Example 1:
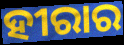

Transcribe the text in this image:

ହୀରାର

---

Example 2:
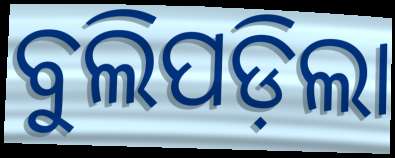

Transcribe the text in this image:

ବୁଲିପଡ଼ିଲା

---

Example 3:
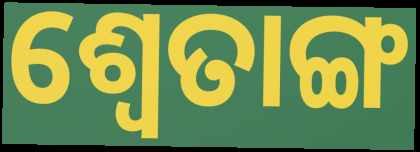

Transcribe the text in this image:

ଶ୍ୱେତାଙ୍ଗ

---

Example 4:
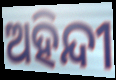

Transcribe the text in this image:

ଅହିନ୍ଦୀ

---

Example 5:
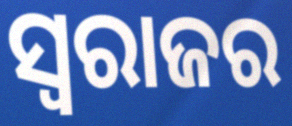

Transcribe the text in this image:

ସ୍ୱରାଜର